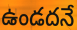
ఉండదనే